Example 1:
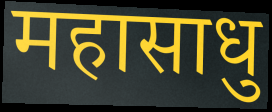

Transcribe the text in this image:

महासाधु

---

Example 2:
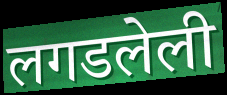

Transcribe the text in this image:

लगडलेली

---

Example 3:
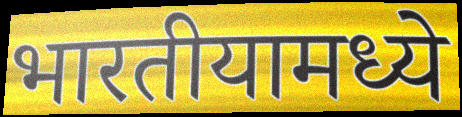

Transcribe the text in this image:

भारतीयामध्ये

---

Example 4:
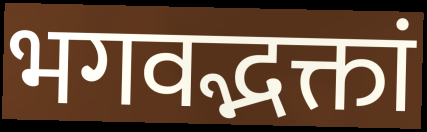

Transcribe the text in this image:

भगवद्भक्तां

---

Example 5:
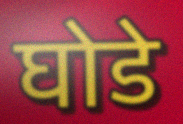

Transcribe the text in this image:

घोडे